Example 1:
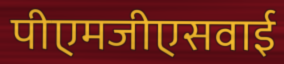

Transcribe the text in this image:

पीएमजीएसवाई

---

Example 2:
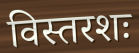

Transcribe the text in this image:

विस्तरशः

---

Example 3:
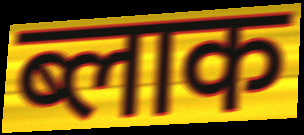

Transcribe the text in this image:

ब्लाक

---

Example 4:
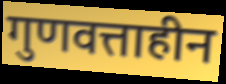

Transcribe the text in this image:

गुणवत्ताहीन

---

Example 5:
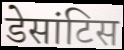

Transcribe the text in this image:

डेसांटिस